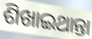
ଶିଖାଇଥାନ୍ତା